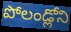
పోలండ్లోని